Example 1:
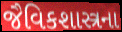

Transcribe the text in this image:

જૈવિકશાસ્ત્રના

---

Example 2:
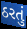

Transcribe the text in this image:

ઠરતું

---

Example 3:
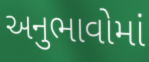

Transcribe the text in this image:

અનુભાવોમાં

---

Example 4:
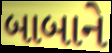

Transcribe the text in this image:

બાબાને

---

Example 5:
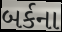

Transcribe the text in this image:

બર્કના